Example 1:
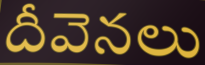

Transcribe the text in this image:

దీవెనలు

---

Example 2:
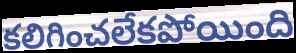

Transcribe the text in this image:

కలిగించలేకపోయింది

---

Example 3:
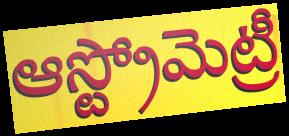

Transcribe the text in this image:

ఆస్ట్రోమెట్రీ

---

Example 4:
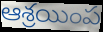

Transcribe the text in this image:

ఆశ్రయింప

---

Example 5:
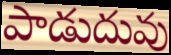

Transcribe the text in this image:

పాడుదువు